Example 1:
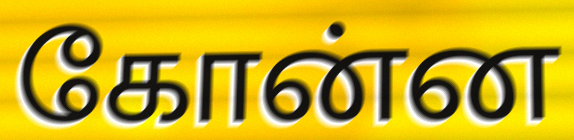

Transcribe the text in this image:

கோன்ன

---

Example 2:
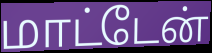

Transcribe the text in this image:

மாட்டேன்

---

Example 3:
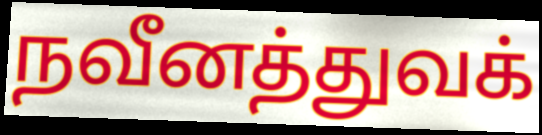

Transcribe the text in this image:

நவீனத்துவக்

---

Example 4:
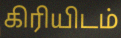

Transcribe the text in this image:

கிரியிடம்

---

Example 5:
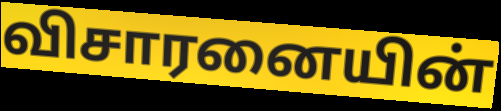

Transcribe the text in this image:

விசாரனையின்